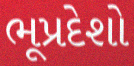
ભૂપ્રદેશો